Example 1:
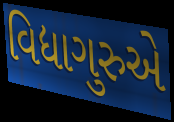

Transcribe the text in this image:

વિદ્યાગુરુએ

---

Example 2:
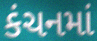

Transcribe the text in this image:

કંચનમાં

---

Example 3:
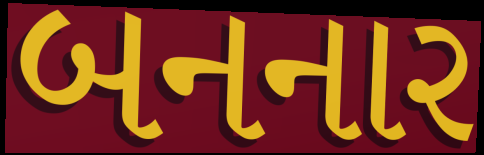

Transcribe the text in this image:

બનનાર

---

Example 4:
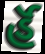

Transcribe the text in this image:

ર્હૅ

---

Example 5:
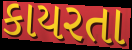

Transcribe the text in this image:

કાયરતા